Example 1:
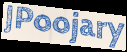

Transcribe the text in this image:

JPoojary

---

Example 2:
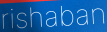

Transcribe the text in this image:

rishaban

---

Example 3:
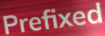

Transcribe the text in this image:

Prefixed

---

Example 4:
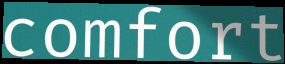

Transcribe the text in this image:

comfort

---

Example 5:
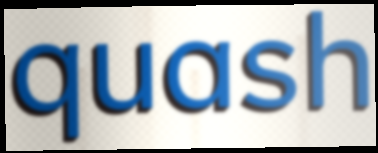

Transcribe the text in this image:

quash